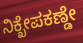
ನಿಕ್ಖೇಪಕಣ್ಡೇ